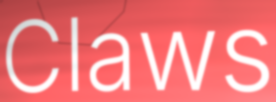
Claws